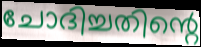
ചോദിച്ചതിന്റെ